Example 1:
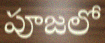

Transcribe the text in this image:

పూజలో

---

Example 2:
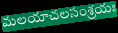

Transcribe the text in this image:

మలయాచలసంశ్రయః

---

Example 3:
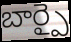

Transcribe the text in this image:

బార్పై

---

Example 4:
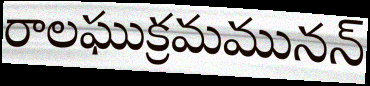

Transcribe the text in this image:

రాలఘుక్రమమునన్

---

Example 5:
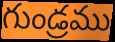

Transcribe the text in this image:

గుండ్రము